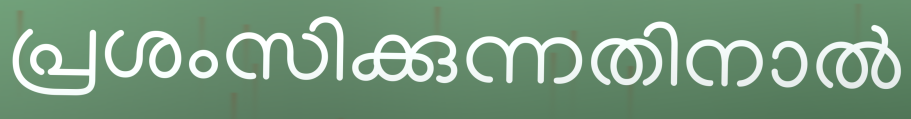
പ്രശംസിക്കുന്നതിനാൽ